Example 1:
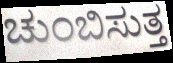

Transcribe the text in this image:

ಚುಂಬಿಸುತ್ತ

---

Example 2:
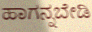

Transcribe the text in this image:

ಹಾಗನ್ನಬೇಡಿ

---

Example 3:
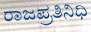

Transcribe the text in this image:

ರಾಜಪ್ರತಿನಿಧಿ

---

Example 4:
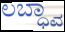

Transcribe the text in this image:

ಲಬ್ಧ್ವಾ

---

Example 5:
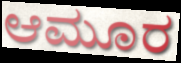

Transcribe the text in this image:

ಆಮೂರ